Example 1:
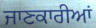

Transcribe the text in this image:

ਜਾਣਕਾਰੀਆਂ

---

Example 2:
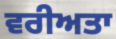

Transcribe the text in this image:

ਵਰੀਅਤਾ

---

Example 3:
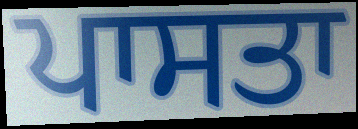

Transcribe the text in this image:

ਪਾਸਤਾ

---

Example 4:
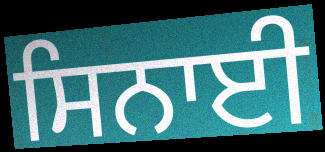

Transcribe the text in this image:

ਸਿਨਾਈ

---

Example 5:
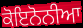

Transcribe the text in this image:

ਕੋਇਨੋਨੀਆ